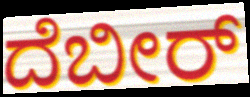
ದೆಬೀರ್